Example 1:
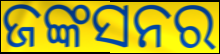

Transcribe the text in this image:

ଜଙ୍କସନର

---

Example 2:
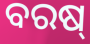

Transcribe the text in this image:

ବରଷ୍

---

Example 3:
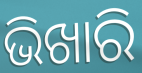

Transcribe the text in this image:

ଭିଖାରି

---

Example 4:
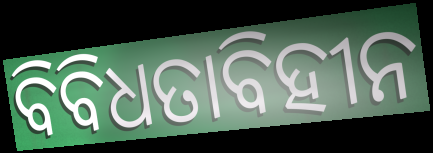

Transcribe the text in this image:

ବିବିଧତାବିହୀନ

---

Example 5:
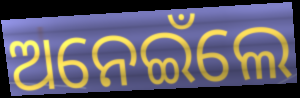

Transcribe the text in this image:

ଅନେଇଁଲେ